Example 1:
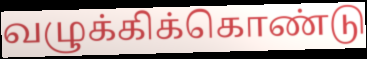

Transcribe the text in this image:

வழுக்கிக்கொண்டு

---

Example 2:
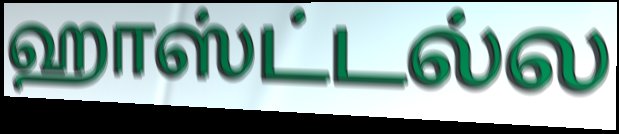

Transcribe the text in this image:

ஹாஸ்ட்டல்ல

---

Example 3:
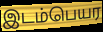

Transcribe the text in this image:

இடம்பெயர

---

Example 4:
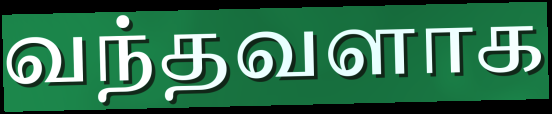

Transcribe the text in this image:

வந்தவளாக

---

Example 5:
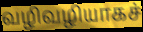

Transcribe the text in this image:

வழிவழியாகச்